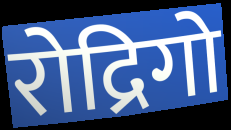
रोद्रिगो